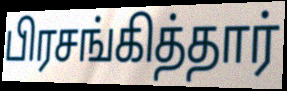
பிரசங்கித்தார்